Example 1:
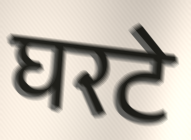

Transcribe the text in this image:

घरटे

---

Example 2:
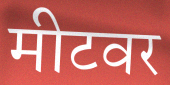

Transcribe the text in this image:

मीटवर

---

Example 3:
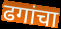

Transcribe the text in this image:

ढगांचा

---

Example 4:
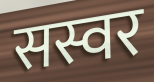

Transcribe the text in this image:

सस्वर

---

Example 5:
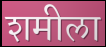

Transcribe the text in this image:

शमीला